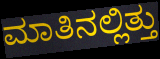
ಮಾತಿನಲ್ಲಿತ್ತು